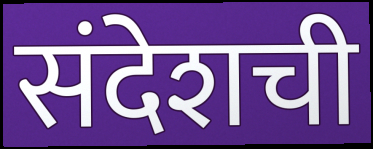
संदेशची